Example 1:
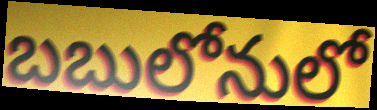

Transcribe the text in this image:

బబులోనులో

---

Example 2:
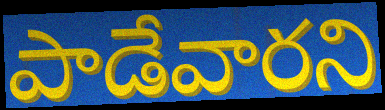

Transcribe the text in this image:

పాడేవారని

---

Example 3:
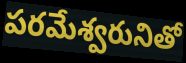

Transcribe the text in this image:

పరమేశ్వరునితో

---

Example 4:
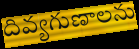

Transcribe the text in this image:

దివ్యగుణాలను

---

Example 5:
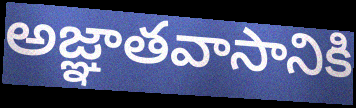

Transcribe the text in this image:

అజ్ఞాతవాసానికి